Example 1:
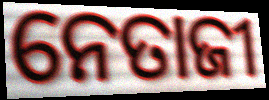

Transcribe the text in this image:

ନେତାଜୀ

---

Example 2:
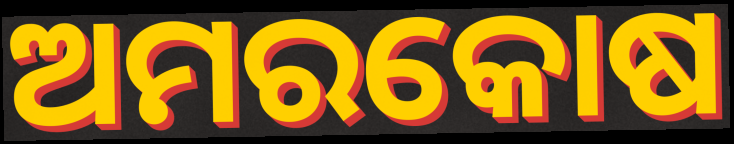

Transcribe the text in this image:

ଅମରକୋଷ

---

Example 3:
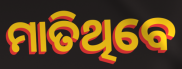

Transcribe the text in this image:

ମାତିଥିବେ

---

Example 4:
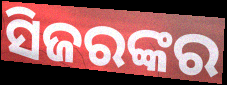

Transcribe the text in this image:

ସିଜରଙ୍କର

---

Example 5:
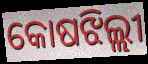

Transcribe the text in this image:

କୋଷଝିଲ୍ଲୀ